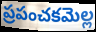
ప్రపంచకమెల్ల